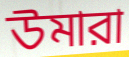
উমারা